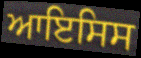
ਆਇਸਿਸ